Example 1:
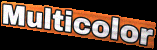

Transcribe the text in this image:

Multicolor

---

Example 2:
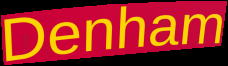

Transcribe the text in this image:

Denham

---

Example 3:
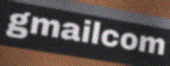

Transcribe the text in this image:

gmailcom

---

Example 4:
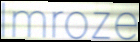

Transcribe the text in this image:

Imroze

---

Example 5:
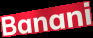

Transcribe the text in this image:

Banani